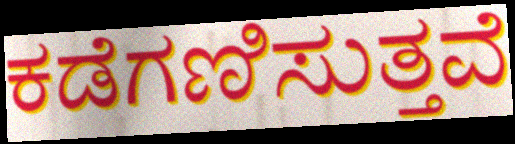
ಕಡೆಗಣಿಸುತ್ತವೆ